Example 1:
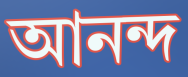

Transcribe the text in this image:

আনন্দ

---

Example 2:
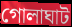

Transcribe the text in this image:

গোলাঘাট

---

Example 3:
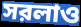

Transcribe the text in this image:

সরলাও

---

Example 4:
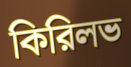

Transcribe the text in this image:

কিরিলভ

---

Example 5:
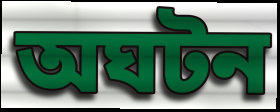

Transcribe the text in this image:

অঘটন